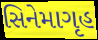
સિનેમાગૃહ